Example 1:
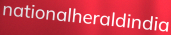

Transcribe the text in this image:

nationalheraldindia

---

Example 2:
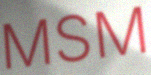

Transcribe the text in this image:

MSM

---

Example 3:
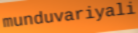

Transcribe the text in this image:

munduvariyali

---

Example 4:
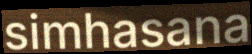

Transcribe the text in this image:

simhasana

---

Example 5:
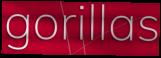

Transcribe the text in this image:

gorillas